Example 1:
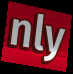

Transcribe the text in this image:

nly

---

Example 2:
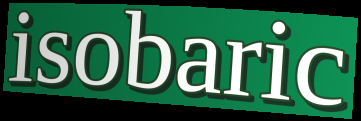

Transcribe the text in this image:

isobaric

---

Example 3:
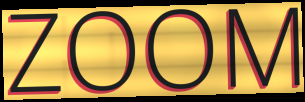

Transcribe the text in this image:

ZOOM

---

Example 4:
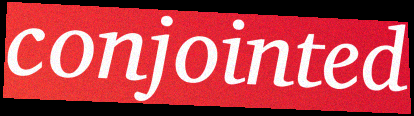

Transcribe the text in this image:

conjointed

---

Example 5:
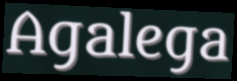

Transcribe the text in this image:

Agalega